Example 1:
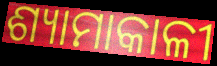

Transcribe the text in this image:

ଶ୍ୟାମାକାଳୀ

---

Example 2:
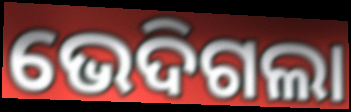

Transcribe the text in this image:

ଭେଦିଗଲା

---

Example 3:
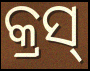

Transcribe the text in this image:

କ୍ରସ୍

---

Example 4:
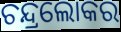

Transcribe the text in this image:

ଚନ୍ଦ୍ରଲୋକର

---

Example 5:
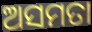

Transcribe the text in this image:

ଅସମତା